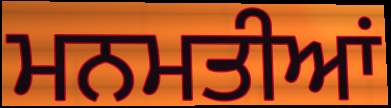
ਮਨਮਤੀਆਂ